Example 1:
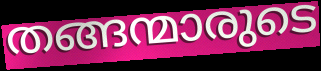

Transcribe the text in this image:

തങ്ങന്മാരുടെ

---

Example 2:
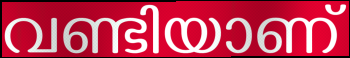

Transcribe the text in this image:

വണ്ടിയാണ്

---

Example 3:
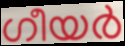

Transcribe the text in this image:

ഗീയർ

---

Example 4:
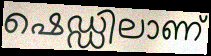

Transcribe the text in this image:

ഷെഡ്ഡിലാണ്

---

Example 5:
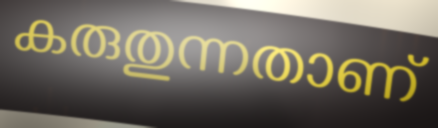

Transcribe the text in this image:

കരുതുന്നതാണ്